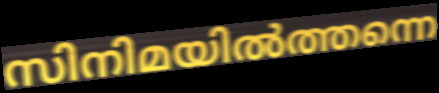
സിനിമയിൽത്തന്നെ